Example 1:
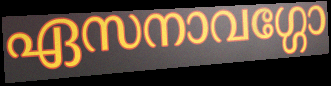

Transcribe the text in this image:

ഏസനാവഗ്ഗോ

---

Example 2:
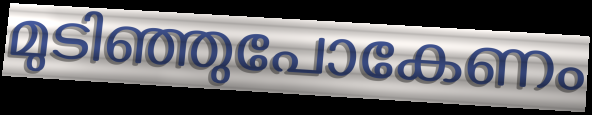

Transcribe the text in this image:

മുടിഞ്ഞുപോകേണം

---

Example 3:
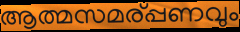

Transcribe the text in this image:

ആത്മസമര്പ്പണവും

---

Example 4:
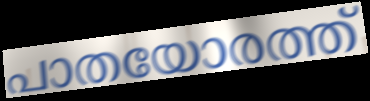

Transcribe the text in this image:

പാതയോരത്ത്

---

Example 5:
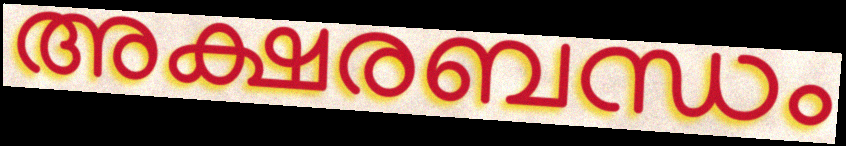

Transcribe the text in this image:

അക്ഷരബന്ധം